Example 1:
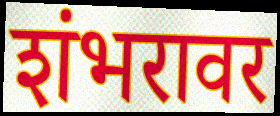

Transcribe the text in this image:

शंभरावर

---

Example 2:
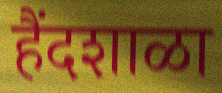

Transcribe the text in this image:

हैंदशाळा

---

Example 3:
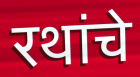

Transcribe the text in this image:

रथांचे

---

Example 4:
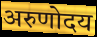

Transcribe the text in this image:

अरुणोदय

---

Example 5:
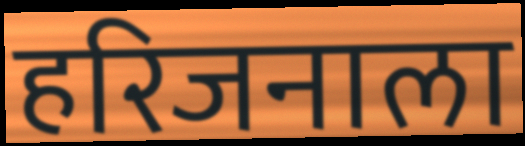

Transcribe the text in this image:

हरिजनाला